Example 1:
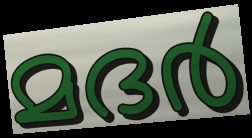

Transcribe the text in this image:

മദർ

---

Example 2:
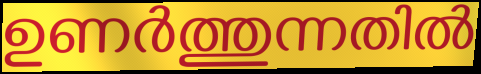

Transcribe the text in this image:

ഉണർത്തുന്നതിൽ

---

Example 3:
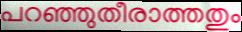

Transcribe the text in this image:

പറഞ്ഞുതീരാത്തതും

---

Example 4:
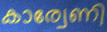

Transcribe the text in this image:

കാര്വേണി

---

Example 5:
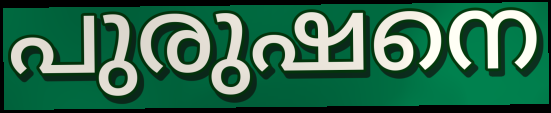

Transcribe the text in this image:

പുരുഷനെ